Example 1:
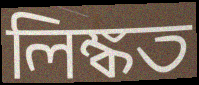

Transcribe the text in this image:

লিঙ্কত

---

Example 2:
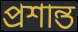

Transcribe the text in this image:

প্ৰশান্ত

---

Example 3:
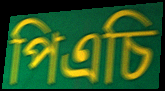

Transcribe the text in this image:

পিএচি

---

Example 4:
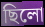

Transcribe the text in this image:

ছিলো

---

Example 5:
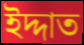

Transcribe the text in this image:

ইদ্দাত